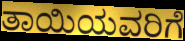
ತಾಯಿಯವರಿಗೆ